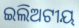
ଇଲିଅଟୀୟ